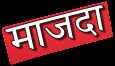
माजदा